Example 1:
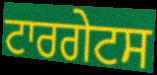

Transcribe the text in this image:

ਟਾਰਗੇਟਸ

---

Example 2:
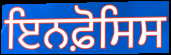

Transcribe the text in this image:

ਇਨਫ਼ੋਸਿਸ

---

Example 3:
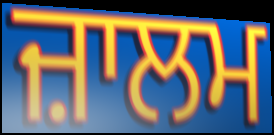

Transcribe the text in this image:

ਜ਼ਾਲਮ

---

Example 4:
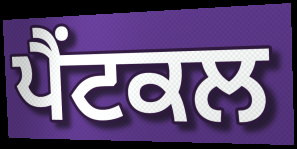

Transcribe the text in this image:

ਪੈਂਟਕਲ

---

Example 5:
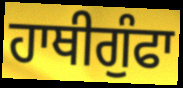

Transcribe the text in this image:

ਹਾਥੀਗੁੰਫਾ